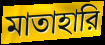
মাতাহারি